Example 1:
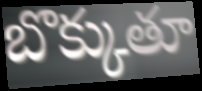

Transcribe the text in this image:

బొక్కుతూ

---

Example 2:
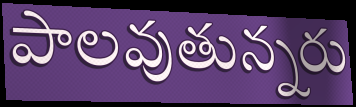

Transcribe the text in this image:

పాలవుతున్నరు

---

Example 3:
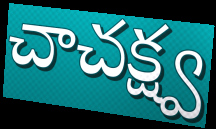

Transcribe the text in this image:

చాచక్ష్వ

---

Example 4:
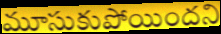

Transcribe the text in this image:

మూసుకుపోయిందని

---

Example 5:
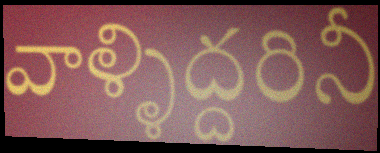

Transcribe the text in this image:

వాళ్ళిద్దరినీ